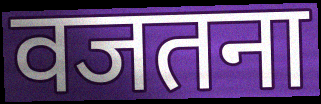
वजतना